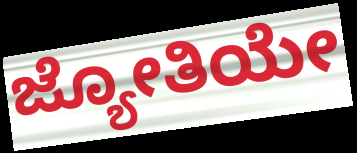
ಜ್ಯೋತಿಯೇ